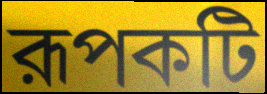
রূপকটি